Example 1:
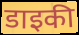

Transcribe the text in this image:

डाइकी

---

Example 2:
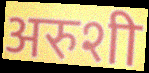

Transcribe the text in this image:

अरुशी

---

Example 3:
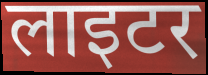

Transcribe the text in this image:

लाइटर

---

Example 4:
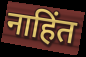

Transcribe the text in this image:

नाहिंत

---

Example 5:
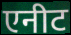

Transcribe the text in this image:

एनीट